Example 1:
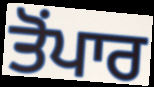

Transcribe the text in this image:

ਤੋਂਪਾਰ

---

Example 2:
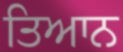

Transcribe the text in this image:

ਤਿਆਨ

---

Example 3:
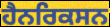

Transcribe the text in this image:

ਹੈਨਰਿਕਸਨ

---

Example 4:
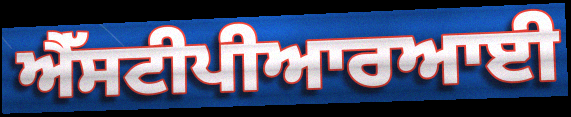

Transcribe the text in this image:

ਐੱਸਟੀਪੀਆਰਆਈ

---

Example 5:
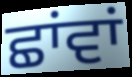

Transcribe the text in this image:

ਛਾਂਵਾਂ